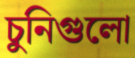
চুনিগুলো